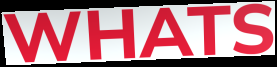
WHATS